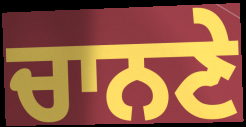
ਚਾਨਣੇ